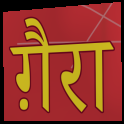
ग़ैरा